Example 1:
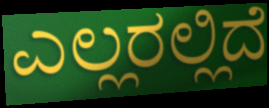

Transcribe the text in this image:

ಎಲ್ಲರಲ್ಲಿದೆ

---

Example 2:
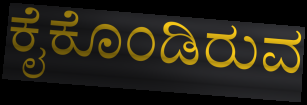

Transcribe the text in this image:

ಕೈಕೊಂಡಿರುವ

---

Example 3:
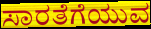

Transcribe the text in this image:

ಸಾರತೆಗೆಯುವ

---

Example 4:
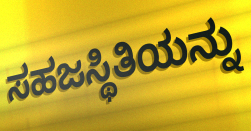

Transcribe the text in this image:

ಸಹಜಸ್ಥಿತಿಯನ್ನು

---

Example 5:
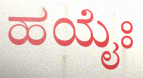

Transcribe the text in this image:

ಹಯೈಃ